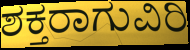
ಶಕ್ತರಾಗುವಿರಿ